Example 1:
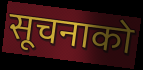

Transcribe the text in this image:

सूचनाको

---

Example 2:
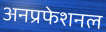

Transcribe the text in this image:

अनप्रफेशनल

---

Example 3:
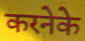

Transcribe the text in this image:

करनेके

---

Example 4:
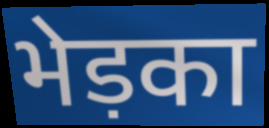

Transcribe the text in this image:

भेड़का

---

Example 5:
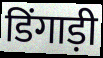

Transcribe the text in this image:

डिंगाड़ी